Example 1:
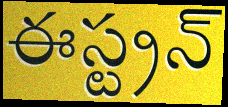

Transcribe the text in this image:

ఈస్ట్రన్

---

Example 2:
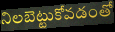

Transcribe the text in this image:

నిలబెట్టుకోవడంతో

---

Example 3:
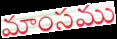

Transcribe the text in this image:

మాంసము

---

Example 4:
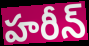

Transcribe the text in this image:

హరీన్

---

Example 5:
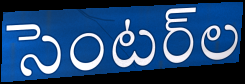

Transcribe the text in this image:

సెంటర్‌ల